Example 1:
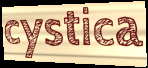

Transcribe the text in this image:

cystica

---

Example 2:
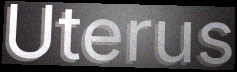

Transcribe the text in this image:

Uterus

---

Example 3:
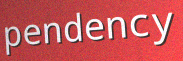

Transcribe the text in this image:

pendency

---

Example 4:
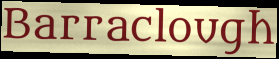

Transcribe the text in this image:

Barraclough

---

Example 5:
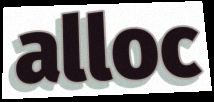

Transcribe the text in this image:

alloc